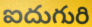
ఐదుగురి